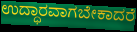
ಉದ್ಧಾರವಾಗಬೇಕಾದರೆ